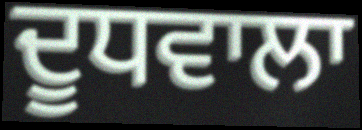
ਦੂਧਵਾਲਾ